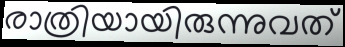
രാത്രിയായിരുന്നുവത്